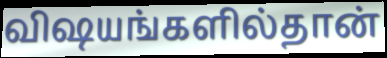
விஷயங்களில்தான்